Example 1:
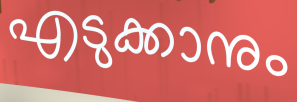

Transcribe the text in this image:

എടുക്കാനും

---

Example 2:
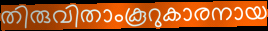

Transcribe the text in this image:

തിരുവിതാംകൂറുകാരനായ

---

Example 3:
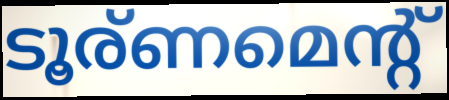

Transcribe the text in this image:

ടൂര്ണമെന്റ്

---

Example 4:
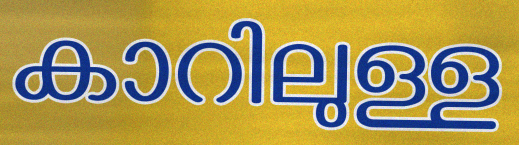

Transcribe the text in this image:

കാറിലുള്ള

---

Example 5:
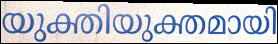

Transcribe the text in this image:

യുക്തിയുക്തമായി